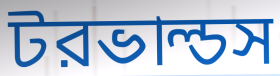
টরভাল্ডস